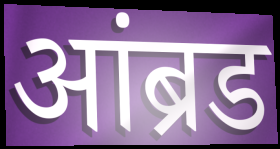
आंब्रड